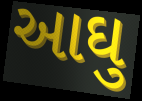
આઘુ